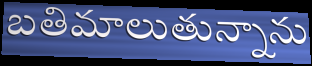
బతిమాలుతున్నాను